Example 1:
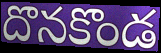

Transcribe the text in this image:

దొనకొండ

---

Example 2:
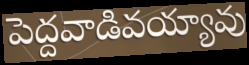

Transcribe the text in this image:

పెద్దవాడివయ్యావు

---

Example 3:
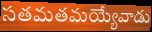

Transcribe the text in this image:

సతమతమయ్యేవాడు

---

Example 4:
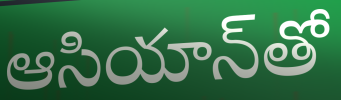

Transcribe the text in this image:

ఆసియాన్‌తో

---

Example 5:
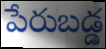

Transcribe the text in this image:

పేరుబడ్డ